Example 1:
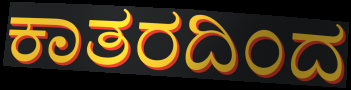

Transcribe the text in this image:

ಕಾತರದಿಂದ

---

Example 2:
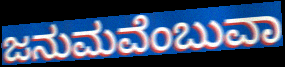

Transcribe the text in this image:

ಜನುಮವೆಂಬುವಾ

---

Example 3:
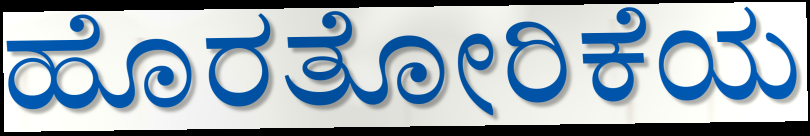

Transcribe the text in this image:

ಹೊರತೋರಿಕೆಯ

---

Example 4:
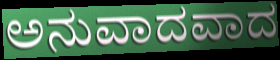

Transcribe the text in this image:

ಅನುವಾದವಾದ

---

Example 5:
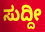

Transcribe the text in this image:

ಸುದ್ದೀ